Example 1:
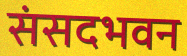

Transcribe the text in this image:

संसदभवन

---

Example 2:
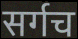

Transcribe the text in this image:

सर्गच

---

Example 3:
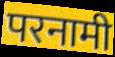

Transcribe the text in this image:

परनामी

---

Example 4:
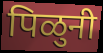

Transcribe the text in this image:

पिळुनी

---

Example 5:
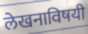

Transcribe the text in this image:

लेखनाविषयी